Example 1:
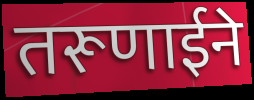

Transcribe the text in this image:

तरूणाईने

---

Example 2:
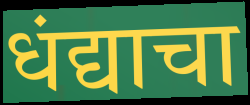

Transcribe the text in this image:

धंद्याचा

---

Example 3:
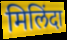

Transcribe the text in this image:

मिलिंदा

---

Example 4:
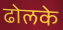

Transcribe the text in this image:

ढोलके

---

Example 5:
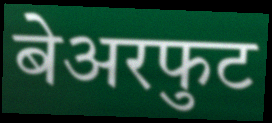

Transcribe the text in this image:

बेअरफुट